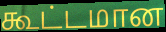
கூட்டமான